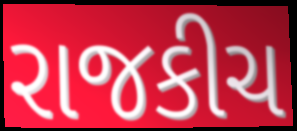
રાજકીચ